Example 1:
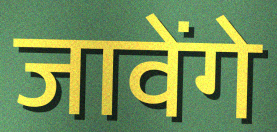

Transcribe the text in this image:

जावेंगे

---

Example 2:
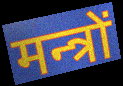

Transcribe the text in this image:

मन्त्रों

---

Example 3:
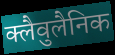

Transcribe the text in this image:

क्लैवुलैनिक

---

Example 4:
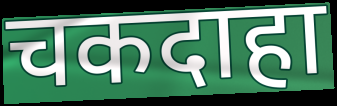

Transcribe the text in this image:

चकदाहा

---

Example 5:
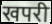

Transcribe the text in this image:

खपरी